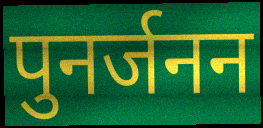
पुनर्जनन